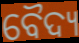
ବୈଦ୍ୟ